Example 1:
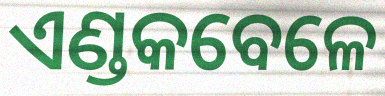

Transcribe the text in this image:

ଏଣ୍ଡକବେଳେ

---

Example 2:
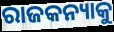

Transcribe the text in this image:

ରାଜକନ୍ୟାକୁ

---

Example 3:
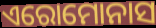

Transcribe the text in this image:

ଏରୋମୋନାସ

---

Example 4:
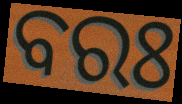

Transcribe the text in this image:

ବରଃ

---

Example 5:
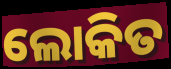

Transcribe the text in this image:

ଲୋକିତ